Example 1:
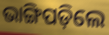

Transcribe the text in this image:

ଭାଙ୍ଗିପଡ଼ିଲେ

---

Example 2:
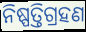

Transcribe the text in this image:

ନିଷ୍ପତ୍ତିଗ୍ରହଣ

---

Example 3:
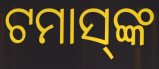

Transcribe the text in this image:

ଟମାସ୍‌ଙ୍କ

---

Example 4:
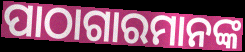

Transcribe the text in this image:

ପାଠାଗାରମାନଙ୍କ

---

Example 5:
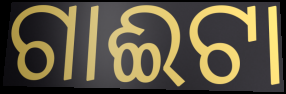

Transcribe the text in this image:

ଗାଈଟା